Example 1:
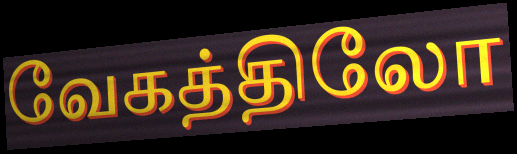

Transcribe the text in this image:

வேகத்திலோ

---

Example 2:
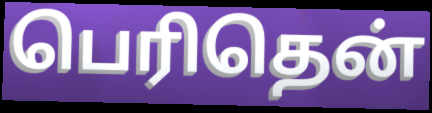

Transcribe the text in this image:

பெரிதென்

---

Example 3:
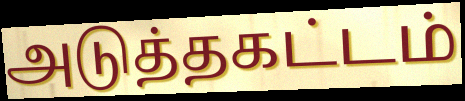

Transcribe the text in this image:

அடுத்தகட்டம்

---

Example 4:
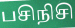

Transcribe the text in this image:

பசிநிசி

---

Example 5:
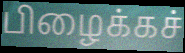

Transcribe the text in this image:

பிழைக்கச்